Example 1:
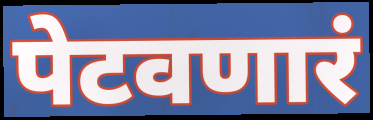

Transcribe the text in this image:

पेटवणारं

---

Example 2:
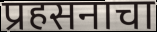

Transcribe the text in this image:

प्रहसनाचा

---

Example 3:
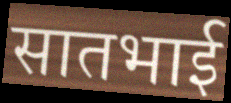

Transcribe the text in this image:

सातभाई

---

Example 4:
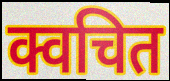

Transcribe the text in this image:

क्वचित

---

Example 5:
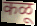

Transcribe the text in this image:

कळू